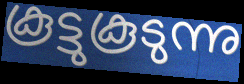
കൂട്ടുകൂടുന്നു